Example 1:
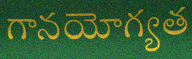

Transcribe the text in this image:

గానయోగ్యత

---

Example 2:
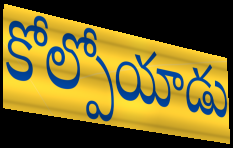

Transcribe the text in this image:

కోల్పోయాడు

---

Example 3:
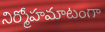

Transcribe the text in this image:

నిర్మోహమాటంగా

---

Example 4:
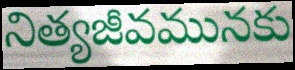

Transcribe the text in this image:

నిత్యజీవమునకు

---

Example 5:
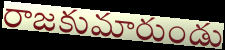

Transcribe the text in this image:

రాజకుమారుండు